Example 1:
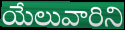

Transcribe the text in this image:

యేలువారిని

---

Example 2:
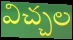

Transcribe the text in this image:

విచ్చల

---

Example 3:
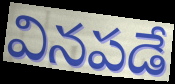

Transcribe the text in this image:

వినపడే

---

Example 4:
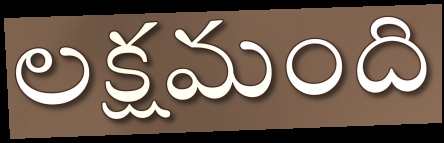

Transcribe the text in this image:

లక్షమంది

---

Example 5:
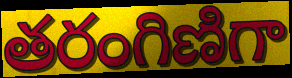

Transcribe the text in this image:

తరంగిణిగా